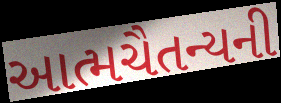
આત્મચૈતન્યની